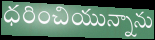
ధరించియున్నాను